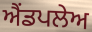
ਐਂਡਪਲੇਅ